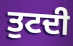
ਤੁਟਦੀ